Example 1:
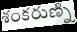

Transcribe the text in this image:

శంకరుణ్ని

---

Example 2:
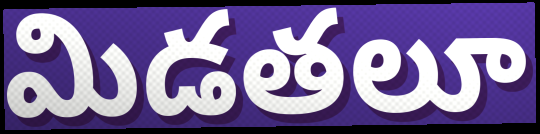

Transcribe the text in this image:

మిడతలూ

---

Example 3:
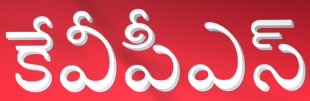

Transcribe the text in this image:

కేవీపీఎస్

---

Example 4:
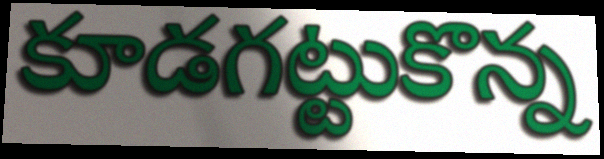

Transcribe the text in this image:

కూడగట్టుకొన్న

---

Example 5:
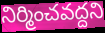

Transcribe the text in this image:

నిర్మించవద్దని